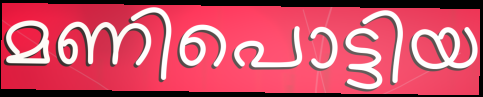
മണിപൊട്ടിയ